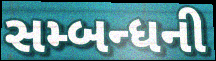
સમ્બન્ધની